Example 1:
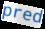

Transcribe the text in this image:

pred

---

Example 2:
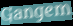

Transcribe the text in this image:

Gangem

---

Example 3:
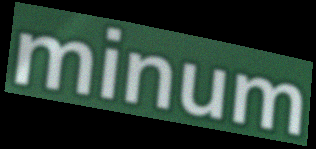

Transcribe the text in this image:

minum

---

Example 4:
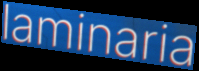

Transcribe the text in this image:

laminaria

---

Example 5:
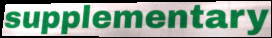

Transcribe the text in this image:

supplementary